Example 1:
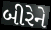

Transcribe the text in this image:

બીરેને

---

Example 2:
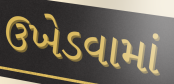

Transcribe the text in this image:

ઉખેડવામાં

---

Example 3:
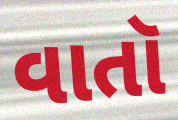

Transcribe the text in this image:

વાતૉ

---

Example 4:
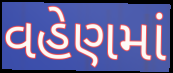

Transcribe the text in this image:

વહેણમાં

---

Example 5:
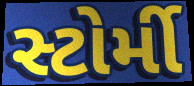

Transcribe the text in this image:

સ્ટોર્મી